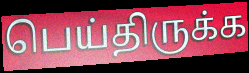
பெய்திருக்க